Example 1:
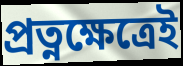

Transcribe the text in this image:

প্রত্নক্ষেত্রেই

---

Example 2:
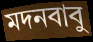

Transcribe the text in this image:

মদনবাবু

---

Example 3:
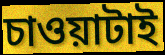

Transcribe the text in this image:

চাওয়াটাই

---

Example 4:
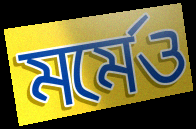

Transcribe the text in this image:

মর্মেও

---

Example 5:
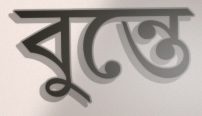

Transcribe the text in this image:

বুন্তে